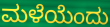
ಮಳೆಯೆಂದು